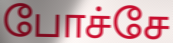
போச்சே